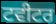
ਟਵੀਟਰ